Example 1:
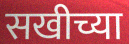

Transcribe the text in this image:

सखीच्या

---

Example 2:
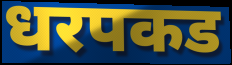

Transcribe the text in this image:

धरपकड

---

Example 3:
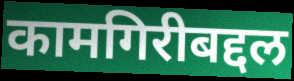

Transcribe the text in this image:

कामगिरीबद्दल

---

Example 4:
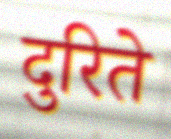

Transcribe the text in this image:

दुरिते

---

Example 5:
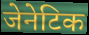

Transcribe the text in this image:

जेनेटिक